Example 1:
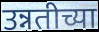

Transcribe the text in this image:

उन्नतीच्या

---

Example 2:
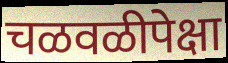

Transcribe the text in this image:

चळवळीपेक्षा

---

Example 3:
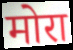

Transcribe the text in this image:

मोरा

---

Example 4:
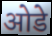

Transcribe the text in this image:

ओडे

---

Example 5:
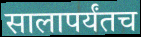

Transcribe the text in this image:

सालापर्यंतच